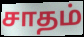
சாதம்